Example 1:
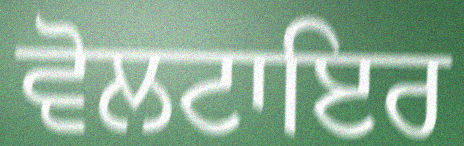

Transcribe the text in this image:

ਵੋਲਟਾਇਰ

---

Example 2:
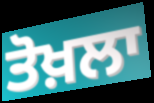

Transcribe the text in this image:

ਤੋਖ਼ਲਾ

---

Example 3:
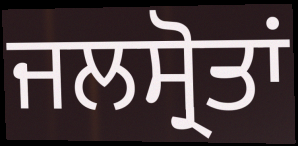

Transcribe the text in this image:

ਜਲਸ੍ਰੋਤਾਂ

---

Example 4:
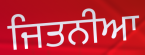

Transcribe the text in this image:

ਜਿਤਨੀਆ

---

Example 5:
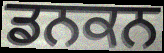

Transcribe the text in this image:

ਡਨਕਨ